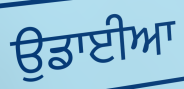
ਉਡਾਈਆ